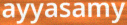
ayyasamy